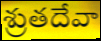
శ్రుతదేవా